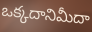
ఒక్కదానిమీదా